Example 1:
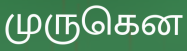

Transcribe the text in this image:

முருகென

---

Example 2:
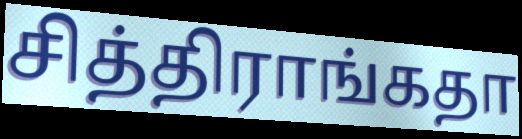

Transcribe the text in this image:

சித்திராங்கதா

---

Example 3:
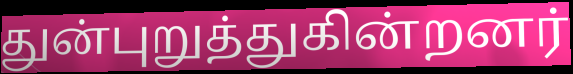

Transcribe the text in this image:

துன்புறுத்துகின்றனர்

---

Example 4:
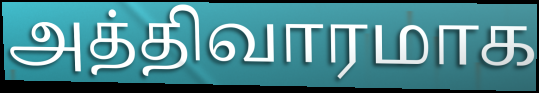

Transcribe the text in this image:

அத்திவாரமாக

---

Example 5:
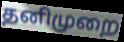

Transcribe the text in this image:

தனிமுறை